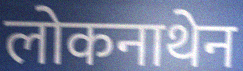
लोकनाथेन